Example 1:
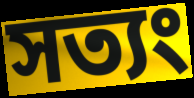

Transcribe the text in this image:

সত্যং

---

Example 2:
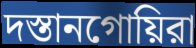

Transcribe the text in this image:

দস্তানগোয়িরা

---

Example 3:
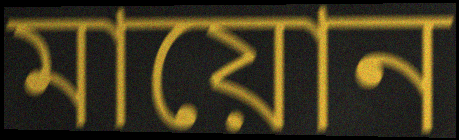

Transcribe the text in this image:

মায়োন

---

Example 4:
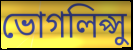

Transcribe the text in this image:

ভোগলিপ্সু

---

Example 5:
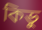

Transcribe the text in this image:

কিভু